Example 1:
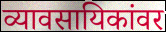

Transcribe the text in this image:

व्यावसायिकांवर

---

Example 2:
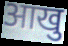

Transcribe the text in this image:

आखु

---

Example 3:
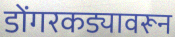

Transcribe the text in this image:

डोंगरकड्यावरून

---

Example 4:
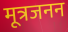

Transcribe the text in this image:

मूत्रजनन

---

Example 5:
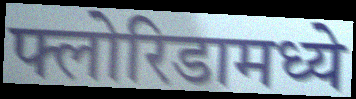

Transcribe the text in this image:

फ्लोरिडामध्ये